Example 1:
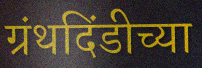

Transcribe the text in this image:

ग्रंथदिंडीच्या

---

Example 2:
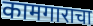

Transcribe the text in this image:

कामगाराचा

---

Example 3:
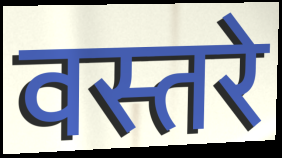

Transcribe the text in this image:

वस्तरे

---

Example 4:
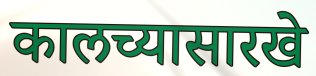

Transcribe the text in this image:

कालच्यासारखे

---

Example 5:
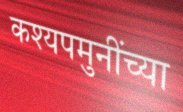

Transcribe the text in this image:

कश्यपमुनींच्या